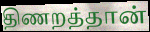
திணறத்தான்